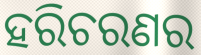
ହରିଚରଣର